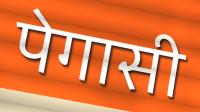
पेगासी